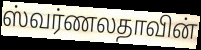
ஸ்வர்ணலதாவின்